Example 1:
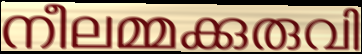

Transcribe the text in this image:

നീലമ്മക്കുരുവി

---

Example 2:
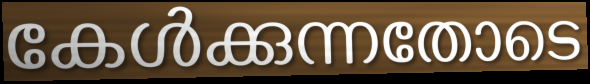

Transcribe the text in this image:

കേൾക്കുന്നതോടെ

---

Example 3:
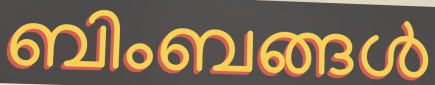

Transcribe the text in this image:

ബിംബങ്ങൾ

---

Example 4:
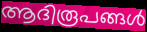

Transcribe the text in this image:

ആദിരൂപങ്ങൾ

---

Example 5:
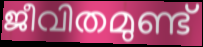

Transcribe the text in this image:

ജീവിതമുണ്ട്